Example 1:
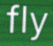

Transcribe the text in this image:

fly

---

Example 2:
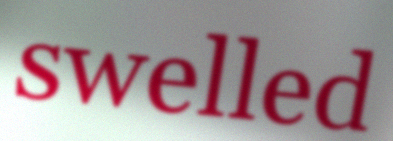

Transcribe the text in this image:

swelled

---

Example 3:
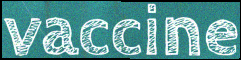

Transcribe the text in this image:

vaccine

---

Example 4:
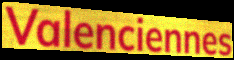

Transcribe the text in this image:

Valenciennes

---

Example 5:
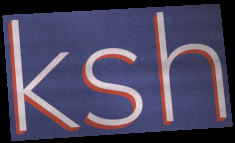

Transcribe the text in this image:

ksh